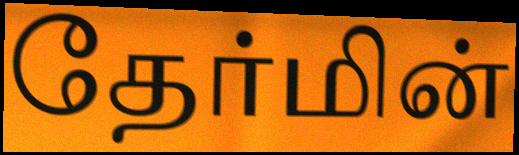
தேர்மின்